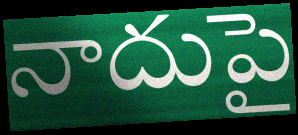
నాదుపై